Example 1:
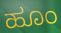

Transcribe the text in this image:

ಹೂಂ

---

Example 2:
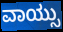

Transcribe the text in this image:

ವಾಯ್ಸು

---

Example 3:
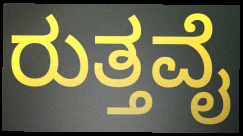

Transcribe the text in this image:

ರುತ್ತವೈ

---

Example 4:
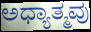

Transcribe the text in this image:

ಅಧ್ಯಾತ್ಮವು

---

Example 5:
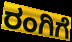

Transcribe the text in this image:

ರಂಗಿಗೆ